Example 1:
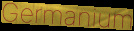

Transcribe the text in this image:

Germanium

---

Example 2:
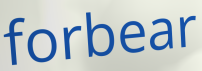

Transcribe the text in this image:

forbear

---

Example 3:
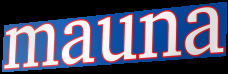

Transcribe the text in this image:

mauna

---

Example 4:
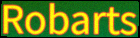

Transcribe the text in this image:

Robarts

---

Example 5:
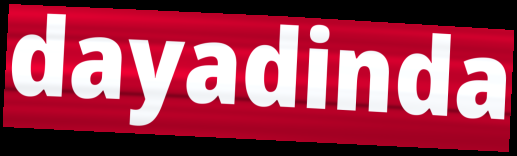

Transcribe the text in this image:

dayadinda